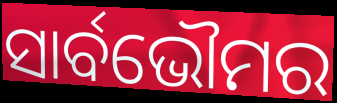
ସାର୍ବଭୌମର